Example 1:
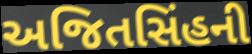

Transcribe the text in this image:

અજિતસિંહની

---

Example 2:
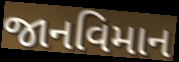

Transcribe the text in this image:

જાનવિમાન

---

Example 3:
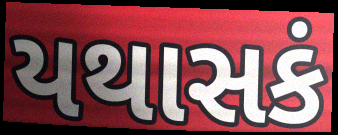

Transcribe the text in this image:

યથાસકં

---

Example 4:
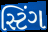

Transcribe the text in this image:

સ્ટિંગ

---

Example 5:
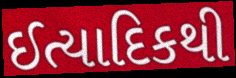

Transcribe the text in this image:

ઈત્યાદિકથી